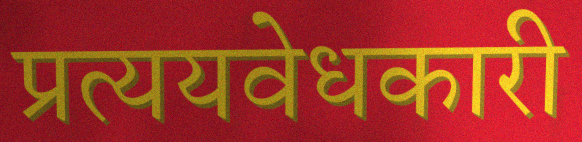
प्रत्ययवेधकारी